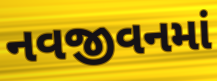
નવજીવનમાં